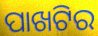
ପାଖଟିର